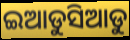
ଇଆଡୁସିଆଡୁ